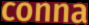
conna